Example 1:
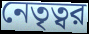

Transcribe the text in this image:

নেতৃত্বর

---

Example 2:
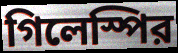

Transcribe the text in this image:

গিলেস্পির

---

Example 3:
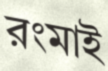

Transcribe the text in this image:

রংমাই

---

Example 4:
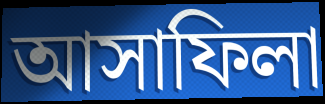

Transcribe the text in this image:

আসাফিলা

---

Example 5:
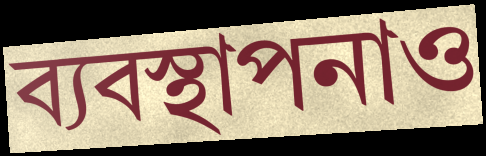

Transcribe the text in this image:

ব্যবস্থাপনাও